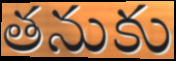
తనుకు